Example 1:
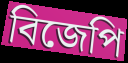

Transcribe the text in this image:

বিজেপি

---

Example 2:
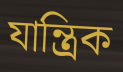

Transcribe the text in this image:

যান্ত্ৰিক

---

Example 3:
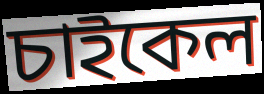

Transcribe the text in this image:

চাইকেল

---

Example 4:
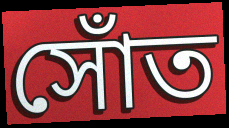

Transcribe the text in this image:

সোঁত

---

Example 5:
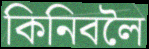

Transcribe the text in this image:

কিনিবলৈ